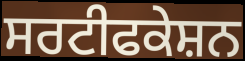
ਸਰਟੀਫਕੇਸ਼ਨ